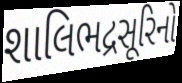
શાલિભદ્રસૂરિનો